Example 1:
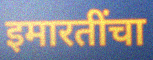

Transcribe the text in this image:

इमारतींचा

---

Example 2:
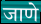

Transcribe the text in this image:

जाणे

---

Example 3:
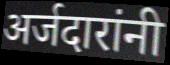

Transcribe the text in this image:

अर्जदारांनी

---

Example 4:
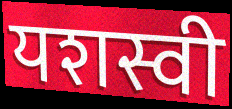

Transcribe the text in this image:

यशस्‍वी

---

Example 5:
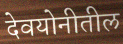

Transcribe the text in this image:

देवयोनीतील